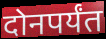
दोनपर्यंत